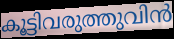
കൂട്ടിവരുത്തുവിൻ